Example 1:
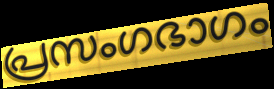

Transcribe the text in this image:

പ്രസംഗഭാഗം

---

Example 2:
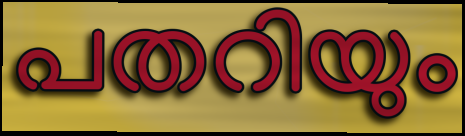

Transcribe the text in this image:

പതറിയും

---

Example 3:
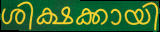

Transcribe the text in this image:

ശിക്ഷക്കായി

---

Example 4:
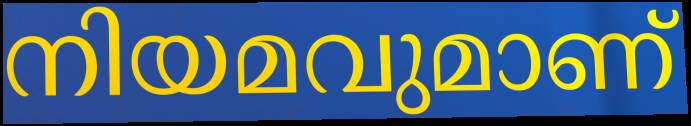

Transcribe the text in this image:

നിയമവുമാണ്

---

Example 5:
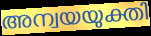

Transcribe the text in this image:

അന്വയയുക്തി